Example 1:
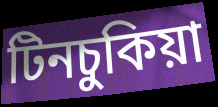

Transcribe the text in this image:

টিনচুকিয়া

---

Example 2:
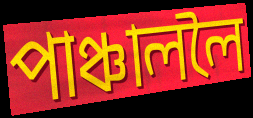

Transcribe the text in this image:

পাঞ্চাললৈ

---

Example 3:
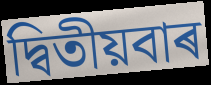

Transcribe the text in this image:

দ্বিতীয়বাৰ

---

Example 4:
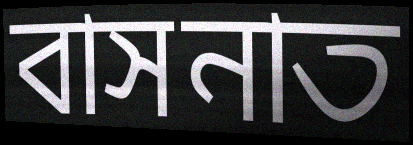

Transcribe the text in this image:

বাসনাত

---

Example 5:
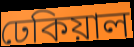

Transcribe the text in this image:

ঢেকিয়াল